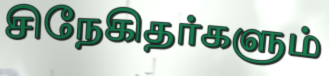
சிநேகிதர்களும்